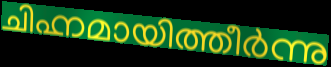
ചിഹ്നമായിത്തീർന്നു